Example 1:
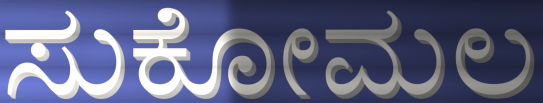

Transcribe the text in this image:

ಸುಕೋಮಲ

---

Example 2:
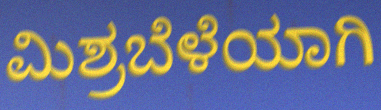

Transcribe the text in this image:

ಮಿಶ್ರಬೆಳೆಯಾಗಿ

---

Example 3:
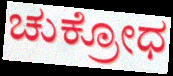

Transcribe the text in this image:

ಚುಕ್ರೋಧ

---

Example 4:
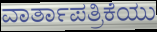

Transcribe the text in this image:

ವಾರ್ತಾಪತ್ರಿಕೆಯು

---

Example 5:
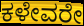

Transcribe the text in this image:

ಕಳೇವರೇ